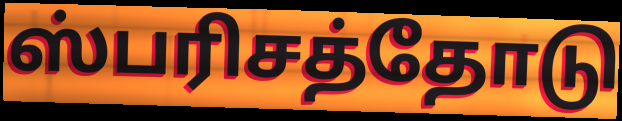
ஸ்பரிசத்தோடு